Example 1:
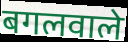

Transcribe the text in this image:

बगलवाले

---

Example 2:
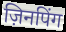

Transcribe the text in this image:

ज़िनपिंग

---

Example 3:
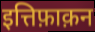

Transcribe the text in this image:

इत्तिफ़ाक़न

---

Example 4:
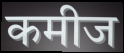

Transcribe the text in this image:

कमीज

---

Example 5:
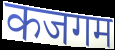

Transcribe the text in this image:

कजगम